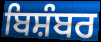
ਬਿਸ਼ੰਬਰ